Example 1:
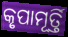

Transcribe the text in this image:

କୃପାମୂର୍ତ୍ତି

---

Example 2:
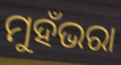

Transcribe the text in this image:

ମୁହଁଭରା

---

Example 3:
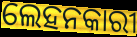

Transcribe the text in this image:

ଲେହନକାରୀ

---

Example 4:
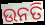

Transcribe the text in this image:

ଉନତି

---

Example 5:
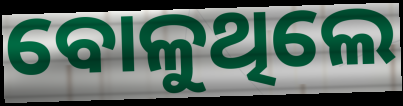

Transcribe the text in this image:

ବୋଳୁଥିଲେ